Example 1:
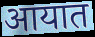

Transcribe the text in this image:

आयात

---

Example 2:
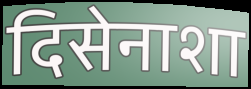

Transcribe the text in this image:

दिसेनाशा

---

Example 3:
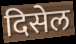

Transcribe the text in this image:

दिसेल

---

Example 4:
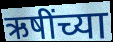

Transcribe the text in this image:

ऋषींच्या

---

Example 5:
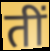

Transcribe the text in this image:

तीं